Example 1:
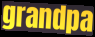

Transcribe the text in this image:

grandpa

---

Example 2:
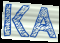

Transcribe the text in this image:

KA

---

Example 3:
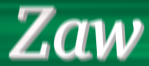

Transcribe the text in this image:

Zaw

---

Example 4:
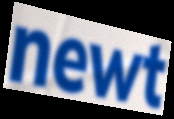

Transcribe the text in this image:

newt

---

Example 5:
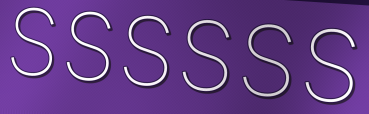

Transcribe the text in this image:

ssssss